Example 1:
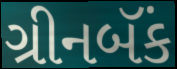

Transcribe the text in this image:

ગ્રીનબૅંક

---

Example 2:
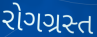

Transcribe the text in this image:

રોગગ્રસ્ત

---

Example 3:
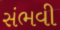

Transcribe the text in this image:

સંભવી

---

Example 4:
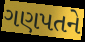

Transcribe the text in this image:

ગણપતને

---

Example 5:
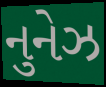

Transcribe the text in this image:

નુનેઝ